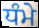
ਧੰਮੇ